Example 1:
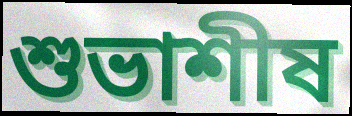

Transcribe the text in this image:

শুভাশীষ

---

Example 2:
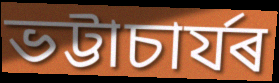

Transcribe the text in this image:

ভট্টাচাৰ্যৰ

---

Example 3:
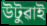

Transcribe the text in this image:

উটুৱাই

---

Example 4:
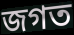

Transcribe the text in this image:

জগত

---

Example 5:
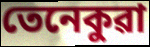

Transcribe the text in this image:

তেনেকুৱা